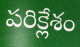
పరిక్లేశం